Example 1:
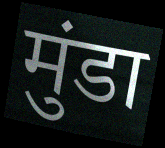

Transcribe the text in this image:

मुंडा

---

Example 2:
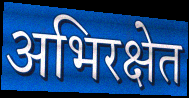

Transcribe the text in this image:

अभिरक्षेत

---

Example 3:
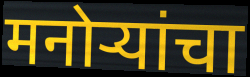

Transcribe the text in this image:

मनोर्‍यांचा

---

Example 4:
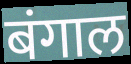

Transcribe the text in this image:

बंगाल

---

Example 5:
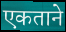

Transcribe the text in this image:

एकताने